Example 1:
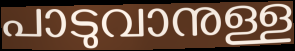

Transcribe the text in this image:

പാടുവാനുള്ള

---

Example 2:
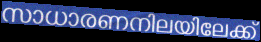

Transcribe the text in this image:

സാധാരണനിലയിലേക്ക്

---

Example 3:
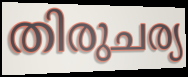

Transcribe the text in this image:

തിരുചര്യ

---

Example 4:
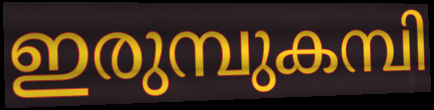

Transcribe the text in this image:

ഇരുമ്പുകമ്പി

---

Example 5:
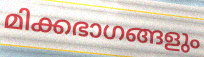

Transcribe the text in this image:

മിക്കഭാഗങ്ങളും